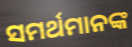
ସମର୍ଥମାନଙ୍କ